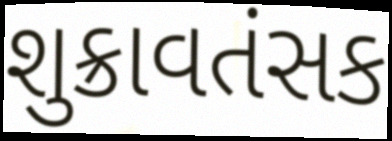
શુક્રાવતંસક